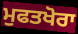
ਮੁਫਤਖੋਰਾ